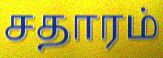
சதாரம்